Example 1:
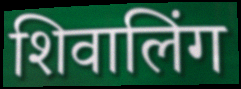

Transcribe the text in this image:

शिवालिंग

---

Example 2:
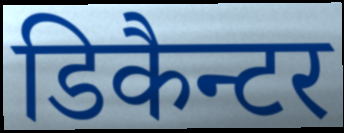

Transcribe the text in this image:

डिकैन्टर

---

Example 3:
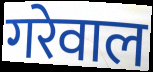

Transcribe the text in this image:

गरेवाल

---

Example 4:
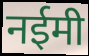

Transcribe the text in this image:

नईमी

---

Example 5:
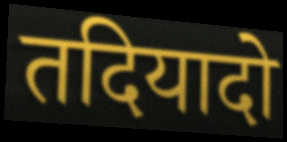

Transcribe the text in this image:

तदियादो